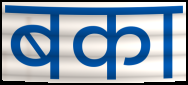
बका